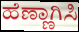
ಹೆಣ್ಣಾಗಿಸಿ